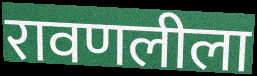
रावणलीला